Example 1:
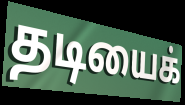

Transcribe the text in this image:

தடியைக்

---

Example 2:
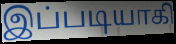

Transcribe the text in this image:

இப்படியாகி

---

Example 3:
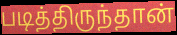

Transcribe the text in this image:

படித்திருந்தான்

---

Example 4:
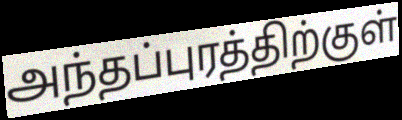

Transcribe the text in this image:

அந்தப்புரத்திற்குள்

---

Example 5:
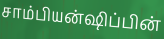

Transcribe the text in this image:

சாம்பியன்ஷிப்பின்